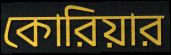
কোরিয়ার